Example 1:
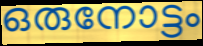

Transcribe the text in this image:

ഒരുനോട്ടം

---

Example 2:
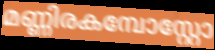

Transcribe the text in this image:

മണ്ണിരകമ്പോസ്റ്റോ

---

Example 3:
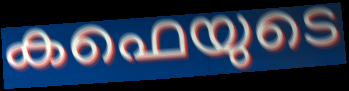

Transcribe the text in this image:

കഫെയുടെ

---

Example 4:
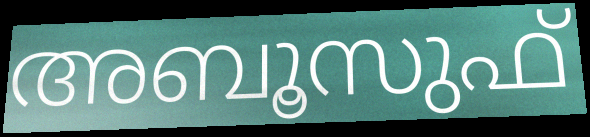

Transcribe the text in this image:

അബൂസുഫ്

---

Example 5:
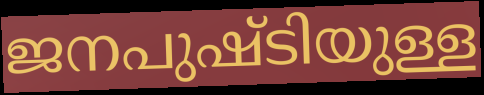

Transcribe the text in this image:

ജനപുഷ്ടിയുള്ള